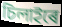
চিলাইৰে